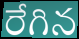
రేగిన